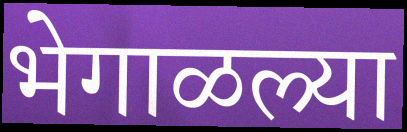
भेगाळल्या